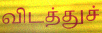
விடத்துச்